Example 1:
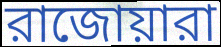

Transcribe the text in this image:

রাজোয়ারা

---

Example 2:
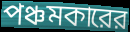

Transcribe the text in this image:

পঞ্চমকারের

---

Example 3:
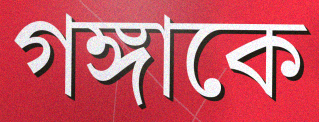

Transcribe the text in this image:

গঙ্গাকে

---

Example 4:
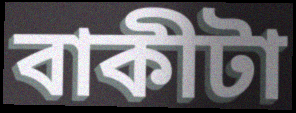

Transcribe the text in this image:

বাকীটা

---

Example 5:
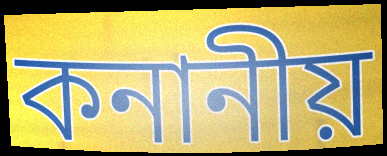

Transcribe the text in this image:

কনানীয়